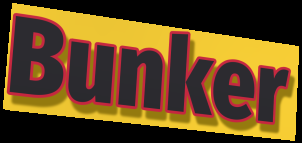
Bunker